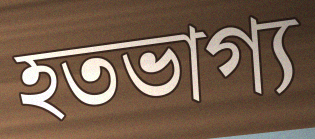
হতভাগ্য